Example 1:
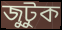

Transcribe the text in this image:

জুটুক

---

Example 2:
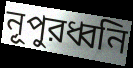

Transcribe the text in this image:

নূপুরধ্বনি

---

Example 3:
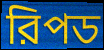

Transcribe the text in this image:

রিপড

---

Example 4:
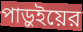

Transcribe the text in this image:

পাড়ুইয়ের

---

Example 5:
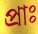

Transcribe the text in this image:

প্রাঃ